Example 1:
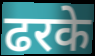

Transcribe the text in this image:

ढरके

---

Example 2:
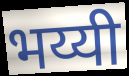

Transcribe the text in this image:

भय्यी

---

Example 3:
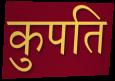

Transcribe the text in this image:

कुपति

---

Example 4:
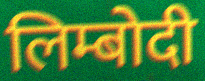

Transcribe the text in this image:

लिम्बोदी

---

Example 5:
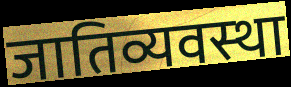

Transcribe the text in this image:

जातिव्यवस्था